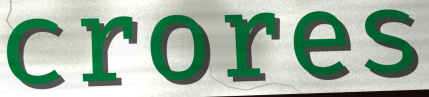
crores